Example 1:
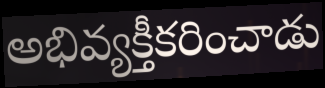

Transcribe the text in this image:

అభివ్యక్తీకరించాడు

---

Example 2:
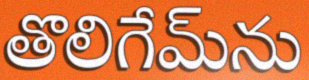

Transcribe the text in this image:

తొలిగేమ్‌ను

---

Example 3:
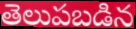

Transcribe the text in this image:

తెలుపబడిన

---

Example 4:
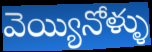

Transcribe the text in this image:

వెయ్యినోళ్ళు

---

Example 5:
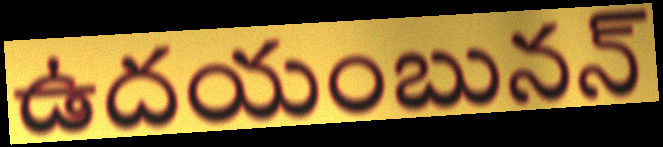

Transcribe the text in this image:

ఉదయంబునన్